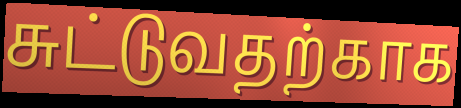
சுட்டுவதற்காக